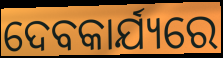
ଦେବକାର୍ଯ୍ୟରେ